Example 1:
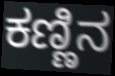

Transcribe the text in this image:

ಕಣ್ಣಿನ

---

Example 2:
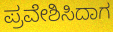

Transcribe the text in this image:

ಪ್ರವೇಶಿಸಿದಾಗ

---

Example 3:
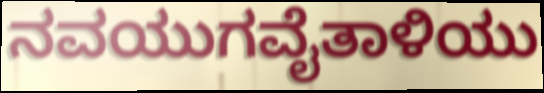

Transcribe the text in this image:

ನವಯುಗವೈತಾಳಿಯು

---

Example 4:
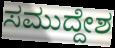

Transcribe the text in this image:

ಸಮುದ್ದೇಶ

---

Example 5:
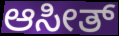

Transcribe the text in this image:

ಆಸೀತ್